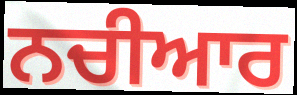
ਨਚੀਆਰ